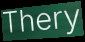
Thery